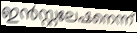
ഇൻസ്റ്റലേഷനെന്ന്